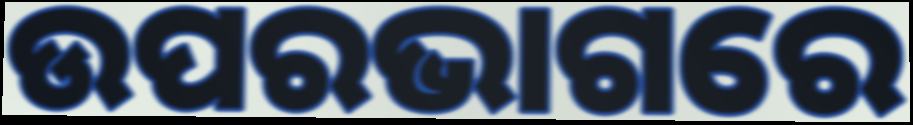
ଉପରଭାଗରେ